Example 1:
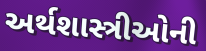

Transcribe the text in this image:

અર્થશાસ્ત્રીઓની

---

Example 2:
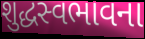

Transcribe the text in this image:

શુદ્ધસ્વભાવના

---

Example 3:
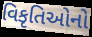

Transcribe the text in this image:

વિકૃતિઓનો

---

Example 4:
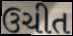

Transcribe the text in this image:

ઉચીત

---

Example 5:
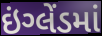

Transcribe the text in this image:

ઇંગ્લેંડમાં